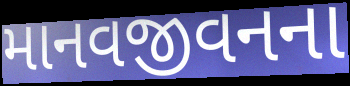
માનવજીવનના